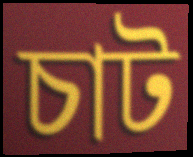
চাট